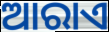
ଆରାଏ